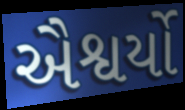
ઐશ્વર્યો